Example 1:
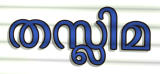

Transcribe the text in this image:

തസ്ലിമ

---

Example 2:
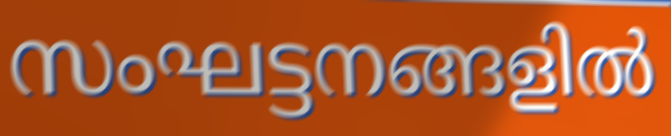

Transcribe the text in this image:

സംഘട്ടനങ്ങളിൽ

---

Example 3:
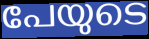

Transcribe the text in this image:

പേയുടെ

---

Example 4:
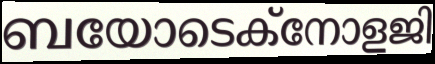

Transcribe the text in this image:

ബയോടെക്നോളജി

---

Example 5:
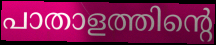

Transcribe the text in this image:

പാതാളത്തിന്റെ